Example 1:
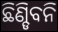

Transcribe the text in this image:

ଛିଣ୍ଡିବନି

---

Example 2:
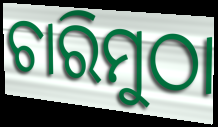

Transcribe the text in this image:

ଚାରିମୁଠା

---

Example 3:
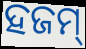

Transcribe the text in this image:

ହଜମ୍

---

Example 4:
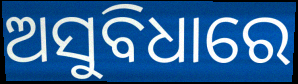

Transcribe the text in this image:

ଅସୁବିଧାରେ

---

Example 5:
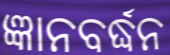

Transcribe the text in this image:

ଜ୍ଞାନବର୍ଦ୍ଧନ